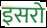
इसरो